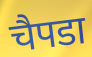
चैपडा